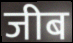
जीब